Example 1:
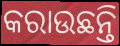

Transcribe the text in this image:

କରାଉଛନ୍ତି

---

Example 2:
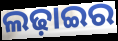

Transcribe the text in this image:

ଲଢ଼ାଇର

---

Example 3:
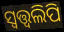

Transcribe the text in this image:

ସ୍ୱତ୍ତ୍ୱଲିପି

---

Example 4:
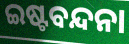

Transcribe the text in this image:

ଇଷ୍ଟବନ୍ଦନା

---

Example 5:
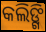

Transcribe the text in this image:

କଲିଙ୍ଗି